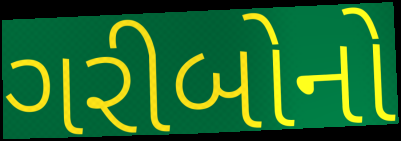
ગરીબોનો